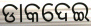
ଡାକଦେଇ